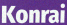
Konrai